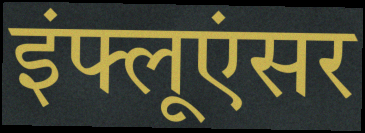
इंफ्लूएंसर